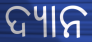
ଦ୍ୟାନ